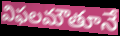
విఫలమౌతూనే